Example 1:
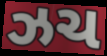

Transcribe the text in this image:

ઝચ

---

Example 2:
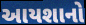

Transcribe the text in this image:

આયશાનો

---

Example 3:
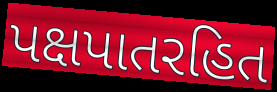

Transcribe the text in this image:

પક્ષપાતરહિત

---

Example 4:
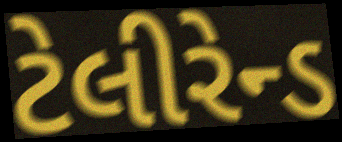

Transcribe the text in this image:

ટેલીરેન્ડ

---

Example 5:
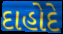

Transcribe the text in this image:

દાહોદે